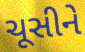
ચૂસીને